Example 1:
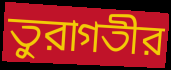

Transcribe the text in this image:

তুরাগতীর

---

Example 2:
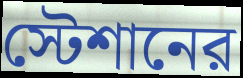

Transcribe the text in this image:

স্টেশানের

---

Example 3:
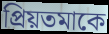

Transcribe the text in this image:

প্রিয়তমাকে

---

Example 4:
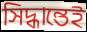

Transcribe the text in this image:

সিদ্ধান্তেই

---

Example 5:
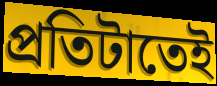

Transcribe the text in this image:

প্রতিটাতেই